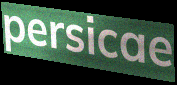
persicae